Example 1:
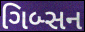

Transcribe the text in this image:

ગિબ્સન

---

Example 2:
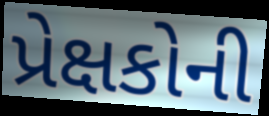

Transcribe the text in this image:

પ્રેક્ષકોની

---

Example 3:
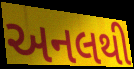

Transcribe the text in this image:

અનલથી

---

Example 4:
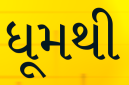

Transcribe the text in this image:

ધૂમથી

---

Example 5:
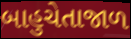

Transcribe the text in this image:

બાહુચેતાજાળ